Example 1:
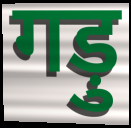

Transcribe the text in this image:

गड़ु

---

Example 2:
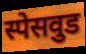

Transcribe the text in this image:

स्पेसवुड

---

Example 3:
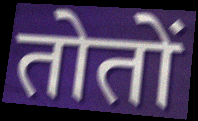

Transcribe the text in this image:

तोतों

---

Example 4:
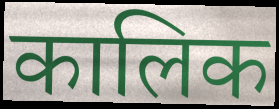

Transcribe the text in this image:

कालिक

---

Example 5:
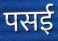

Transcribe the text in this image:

पसई